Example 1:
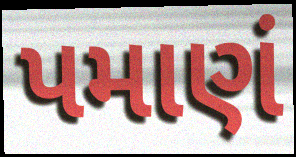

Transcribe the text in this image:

પમાણં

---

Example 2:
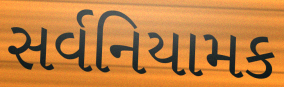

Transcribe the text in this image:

સર્વનિયામક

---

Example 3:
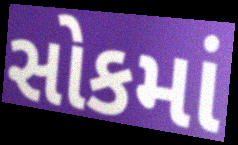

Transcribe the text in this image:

સોકમાં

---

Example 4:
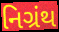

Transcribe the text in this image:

નિગ્રંથ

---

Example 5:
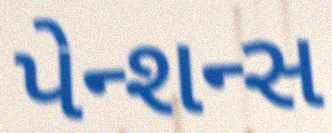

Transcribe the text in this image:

પેન્શન્સ